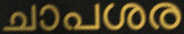
ചാപശര